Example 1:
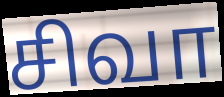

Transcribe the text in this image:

சிவா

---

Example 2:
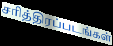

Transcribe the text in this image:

சரித்திரப்படங்கள்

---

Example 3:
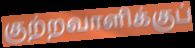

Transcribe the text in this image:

குற்றவாளிக்குப்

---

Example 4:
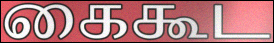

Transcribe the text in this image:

கைகூட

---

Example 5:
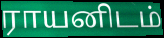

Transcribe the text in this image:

ராயனிடம்